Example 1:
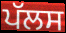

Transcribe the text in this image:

ਪੱਲਸ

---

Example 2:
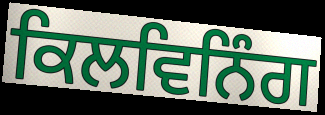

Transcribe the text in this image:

ਕਿਲਵਿਨਿੰਗ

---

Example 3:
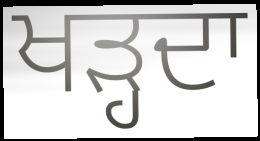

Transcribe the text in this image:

ਖੜ੍ਹਦਾ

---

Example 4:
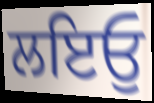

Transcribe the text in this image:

ਲਇਓੁ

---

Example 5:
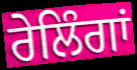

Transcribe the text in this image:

ਰੇਲਿੰਗਾਂ